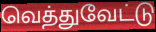
வெத்துவேட்டு